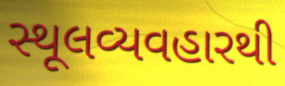
સ્થૂલવ્યવહારથી